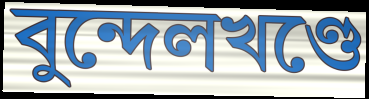
বুন্দেলখণ্ডে